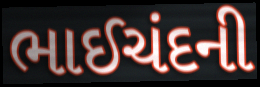
ભાઈચંદની